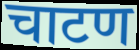
चाटण